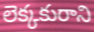
లెక్కకురాని